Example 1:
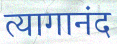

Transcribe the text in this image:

त्यागानंद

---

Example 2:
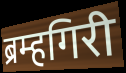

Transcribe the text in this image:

ब्रम्हगिरी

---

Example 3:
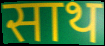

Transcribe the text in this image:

साथ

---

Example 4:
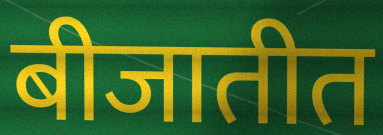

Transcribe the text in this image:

बीजातीत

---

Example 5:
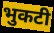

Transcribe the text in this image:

भुकटी